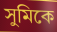
সুমিকে